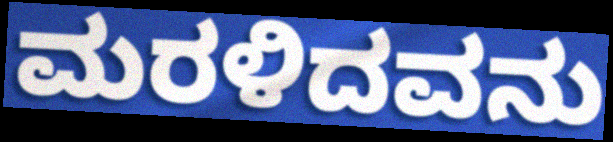
ಮರಳಿದವನು